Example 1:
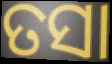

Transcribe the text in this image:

ତସା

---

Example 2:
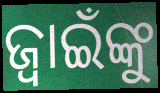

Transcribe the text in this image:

ଜ୍ବାଇଁଙ୍କୁ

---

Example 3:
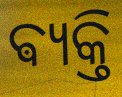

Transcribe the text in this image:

ଵ୍ଯକ୍ତି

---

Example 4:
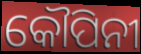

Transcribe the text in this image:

କୌପିନୀ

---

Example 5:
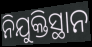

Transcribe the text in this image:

ନିଯୁକ୍ତିସ୍ଥାନ